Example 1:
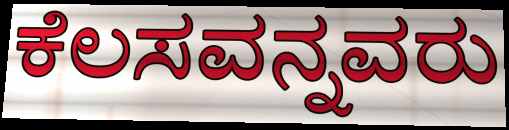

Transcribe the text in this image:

ಕೆಲಸವನ್ನವರು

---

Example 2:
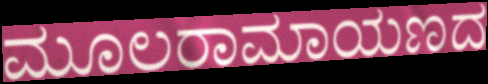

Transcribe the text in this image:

ಮೂಲರಾಮಾಯಣದ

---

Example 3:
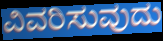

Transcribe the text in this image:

ವಿವರಿಸುವುದು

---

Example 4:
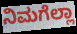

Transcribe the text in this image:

ನಿಮಗೆಲ್ಲಾ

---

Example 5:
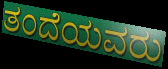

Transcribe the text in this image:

ತಂದೆಯವರು